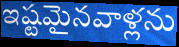
ఇష్టమైనవాళ్లను